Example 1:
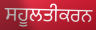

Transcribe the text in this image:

ਸਹੂਲਤੀਕਰਨ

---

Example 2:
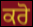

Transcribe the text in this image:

ਕਰੋ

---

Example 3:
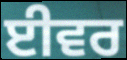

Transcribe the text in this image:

ਈਵਰ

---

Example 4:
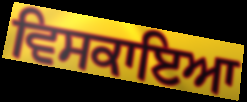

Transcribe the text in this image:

ਵਿਸਕਾਇਆ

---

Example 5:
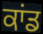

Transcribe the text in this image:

ਕਾਂਡ